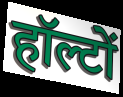
हॉल्टों